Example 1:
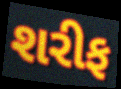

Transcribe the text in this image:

શરીફ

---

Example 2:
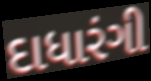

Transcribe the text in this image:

દાધારંગી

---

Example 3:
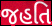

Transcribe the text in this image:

જહતિ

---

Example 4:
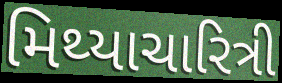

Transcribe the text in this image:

મિથ્યાચારિત્રી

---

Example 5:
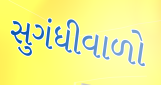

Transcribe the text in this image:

સુગંધીવાળો